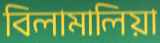
বিলামালিয়া